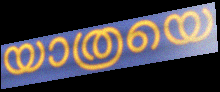
യാത്രയെ